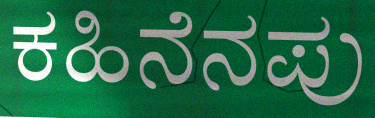
ಕಹಿನೆನಪು